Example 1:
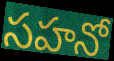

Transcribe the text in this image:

సహనో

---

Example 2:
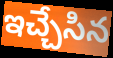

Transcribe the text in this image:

ఇచ్చేసిన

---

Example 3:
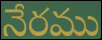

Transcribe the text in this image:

నేరము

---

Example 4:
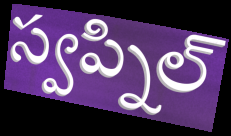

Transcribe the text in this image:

స్వప్నిల్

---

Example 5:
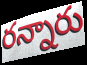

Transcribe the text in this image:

రన్నారు